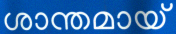
ശാന്തമായ്